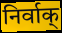
निर्वाक्